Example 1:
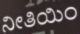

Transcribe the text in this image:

ನೀತಿಯಿಂ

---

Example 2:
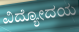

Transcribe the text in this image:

ವಿದ್ಯೋದಯ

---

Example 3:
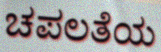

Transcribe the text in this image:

ಚಪಲತೆಯ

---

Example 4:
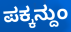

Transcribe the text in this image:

ಪಕ್ಕನ್ದುಂ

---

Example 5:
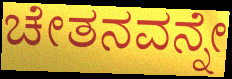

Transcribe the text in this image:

ಚೇತನವನ್ನೇ